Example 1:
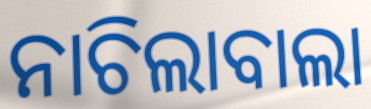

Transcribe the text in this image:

ନାଚିଲାବାଲା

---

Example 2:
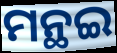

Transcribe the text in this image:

ମନ୍ଥଇ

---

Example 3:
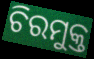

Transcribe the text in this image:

ଚିରମୁକ୍ତ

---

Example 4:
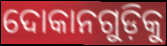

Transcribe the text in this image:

ଦୋକାନଗୁଡ଼ିକୁ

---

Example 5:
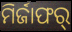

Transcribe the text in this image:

ମିର୍ଜାଫର୍